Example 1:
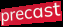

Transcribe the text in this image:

precast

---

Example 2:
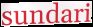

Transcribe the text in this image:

sundari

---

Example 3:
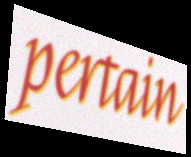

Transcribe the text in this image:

pertain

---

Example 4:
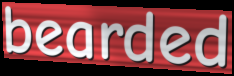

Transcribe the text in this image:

bearded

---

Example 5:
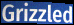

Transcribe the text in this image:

Grizzled